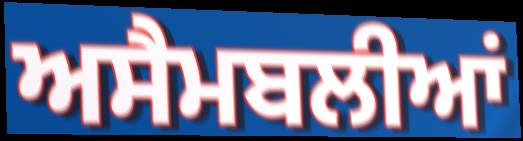
ਅਸੈਮਬਲੀਆਂ